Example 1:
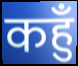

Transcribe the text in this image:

कहुँ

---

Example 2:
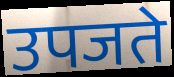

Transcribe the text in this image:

उपजते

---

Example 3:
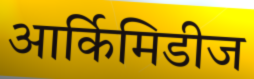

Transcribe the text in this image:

आर्किमिडीज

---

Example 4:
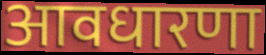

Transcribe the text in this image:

आवधारणा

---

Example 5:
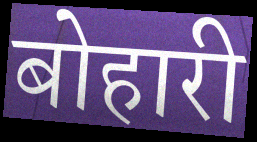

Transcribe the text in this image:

बोहारी